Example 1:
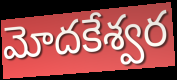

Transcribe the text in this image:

మోదకేశ్వర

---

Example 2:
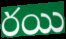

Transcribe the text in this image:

రయి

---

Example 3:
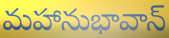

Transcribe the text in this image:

మహానుభావాన్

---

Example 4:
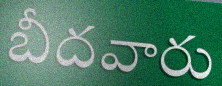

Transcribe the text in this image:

బీదవారు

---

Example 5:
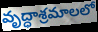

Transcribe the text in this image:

వృద్ధాశ్రమాలలో